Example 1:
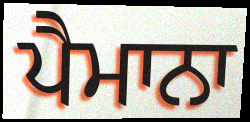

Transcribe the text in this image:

ਪੈਮਾਨਾ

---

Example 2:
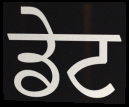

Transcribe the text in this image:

ਡੇਟ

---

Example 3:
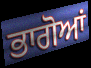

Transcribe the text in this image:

ਭਾਗੋਆਂ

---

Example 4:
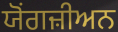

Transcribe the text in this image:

ਯੋਂਗਜ਼ੀਅਨ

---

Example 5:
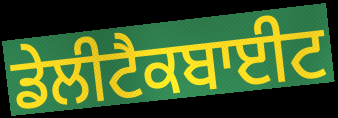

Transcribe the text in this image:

ਡੇਲੀਟੈਕਬਾਈਟ